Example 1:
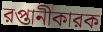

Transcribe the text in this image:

রপ্তানীকারক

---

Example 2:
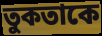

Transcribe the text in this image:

তুকতাকে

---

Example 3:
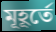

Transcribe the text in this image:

মূহূর্তে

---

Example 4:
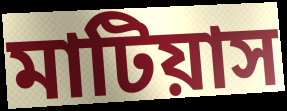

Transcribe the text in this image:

মাটিয়াস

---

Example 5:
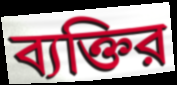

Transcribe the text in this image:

ব্যক্তির